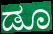
ಡೂ